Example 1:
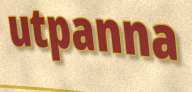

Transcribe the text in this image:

utpanna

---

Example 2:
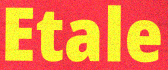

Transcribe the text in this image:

Etale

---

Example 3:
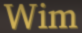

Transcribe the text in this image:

Wim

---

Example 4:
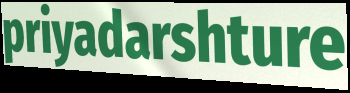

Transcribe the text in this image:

priyadarshture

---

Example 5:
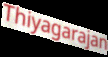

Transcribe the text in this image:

Thiyagarajan